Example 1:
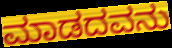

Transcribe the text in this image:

ಮಾಡದವನು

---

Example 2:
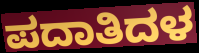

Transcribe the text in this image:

ಪದಾತಿದಳ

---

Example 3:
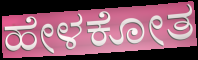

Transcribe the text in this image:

ಹೇಳಕೋತ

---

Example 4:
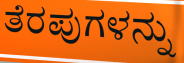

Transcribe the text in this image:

ತೆರಪುಗಳನ್ನು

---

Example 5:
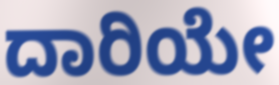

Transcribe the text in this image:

ದಾರಿಯೇ